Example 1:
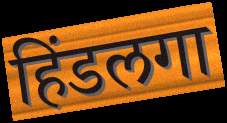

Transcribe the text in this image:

हिंडलगा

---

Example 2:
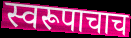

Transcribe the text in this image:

स्वरूपाचाच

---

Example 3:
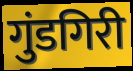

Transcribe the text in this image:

गुंडगिरी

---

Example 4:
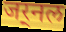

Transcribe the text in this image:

जर्नल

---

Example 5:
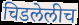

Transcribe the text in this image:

चिडलेलीच